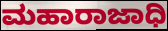
ಮಹಾರಾಜಾಧಿ